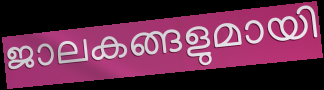
ജാലകങ്ങളുമായി